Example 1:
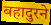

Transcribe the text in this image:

बहादुरने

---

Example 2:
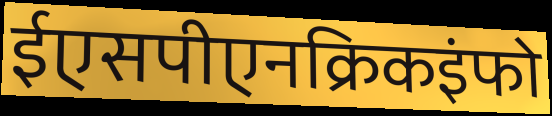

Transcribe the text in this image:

ईएसपीएनक्रिकइंफो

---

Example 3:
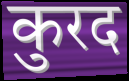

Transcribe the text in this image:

कुरद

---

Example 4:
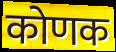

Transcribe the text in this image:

कोणक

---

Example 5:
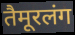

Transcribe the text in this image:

तैमूरलंग